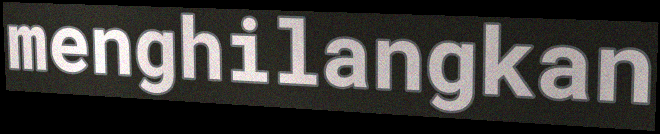
menghilangkan